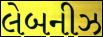
લેબનીઝ